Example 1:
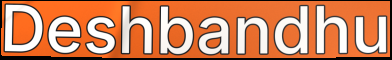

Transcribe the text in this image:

Deshbandhu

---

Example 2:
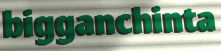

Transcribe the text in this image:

bigganchinta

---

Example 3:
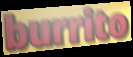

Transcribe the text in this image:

burrito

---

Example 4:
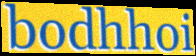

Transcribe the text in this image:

bodhhoi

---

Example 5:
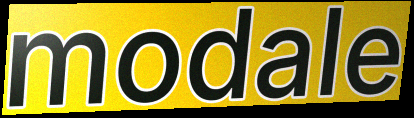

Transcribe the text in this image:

modale